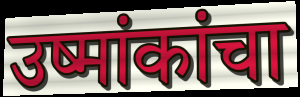
उष्मांकांचा